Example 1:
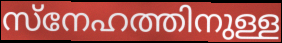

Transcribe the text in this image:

സ്നേഹത്തിനുള്ള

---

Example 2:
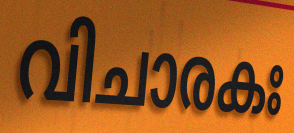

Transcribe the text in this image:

വിചാരകഃ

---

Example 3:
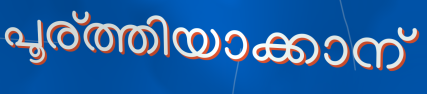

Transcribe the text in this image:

പൂര്ത്തിയാക്കാന്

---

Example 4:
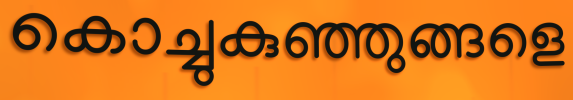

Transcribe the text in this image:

കൊച്ചുകുഞ്ഞുങ്ങളെ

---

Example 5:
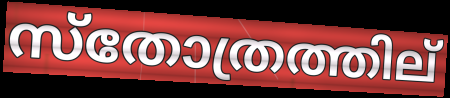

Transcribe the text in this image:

സ്തോത്രത്തില്